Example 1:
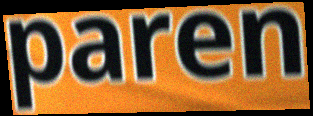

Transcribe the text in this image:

paren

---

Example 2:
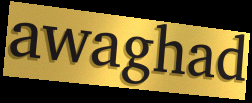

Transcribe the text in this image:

awaghad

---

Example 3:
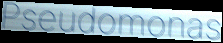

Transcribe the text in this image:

Pseudomonas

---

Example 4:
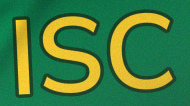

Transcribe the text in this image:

ISC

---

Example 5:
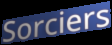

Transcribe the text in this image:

Sorciers